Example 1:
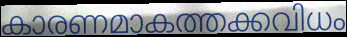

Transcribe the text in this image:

കാരണമാകത്തക്കവിധം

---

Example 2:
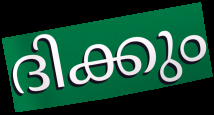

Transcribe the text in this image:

ദിക്കും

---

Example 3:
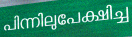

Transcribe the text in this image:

പിന്നിലുപേക്ഷിച്ച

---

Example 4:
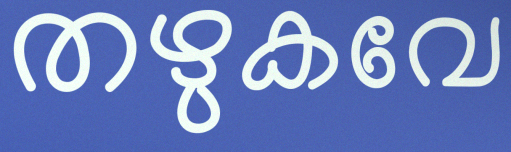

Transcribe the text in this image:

തഴുകവേ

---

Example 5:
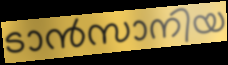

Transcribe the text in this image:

ടാൻസാനിയ